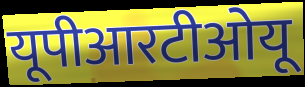
यूपीआरटीओयू